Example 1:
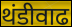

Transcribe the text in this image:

थंडीवाढ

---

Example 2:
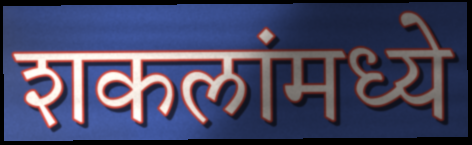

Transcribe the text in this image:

शकलांमध्ये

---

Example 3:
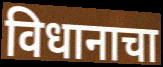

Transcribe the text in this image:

विधानाचा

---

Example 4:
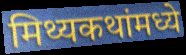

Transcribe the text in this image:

मिथ्यकथांमध्ये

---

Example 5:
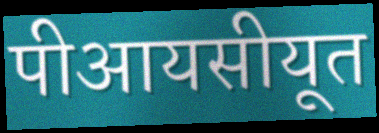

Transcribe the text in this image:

पीआयसीयूत